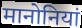
मानोनियां